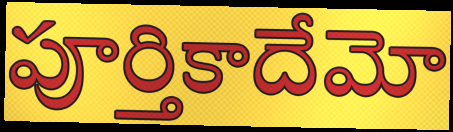
పూర్తికాదేమో